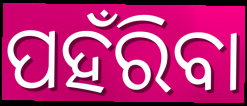
ପହଁରିବା